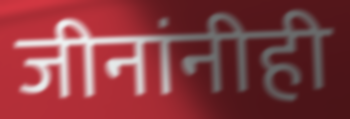
जीनांनीही